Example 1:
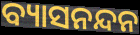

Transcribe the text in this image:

ବ୍ୟାସନନ୍ଦନ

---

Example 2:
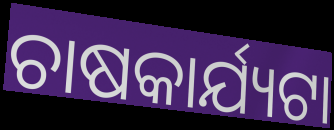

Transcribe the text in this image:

ଚାଷକାର୍ଯ୍ୟଟା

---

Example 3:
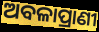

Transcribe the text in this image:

ଅବଳାପ୍ରାଣୀ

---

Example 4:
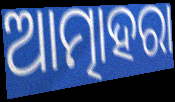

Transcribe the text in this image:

ଆତ୍ମାହରା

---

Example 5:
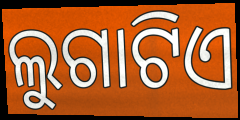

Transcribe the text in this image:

ଲୁଗାଟିଏ